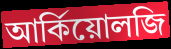
আর্কিয়োলজি